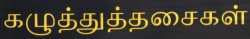
கழுத்துத்தசைகள்